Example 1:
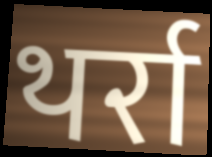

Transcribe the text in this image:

थर्रा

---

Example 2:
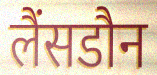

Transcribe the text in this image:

लैंसडौन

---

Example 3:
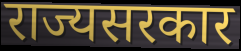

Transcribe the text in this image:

राज्यसरकार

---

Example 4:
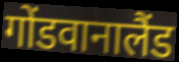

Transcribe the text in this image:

गोंडवानालैंड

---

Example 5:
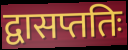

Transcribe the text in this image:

द्वासप्ततिः